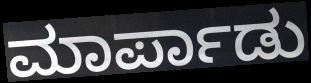
ಮಾರ್ಪಾಡು